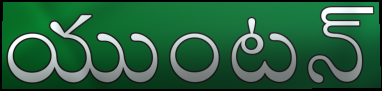
యుంటన్